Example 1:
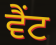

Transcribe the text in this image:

ਵੈਂਟ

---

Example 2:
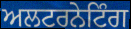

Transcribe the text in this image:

ਅਲਟਰਨੇਟਿੰਗ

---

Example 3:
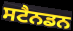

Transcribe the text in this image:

ਸਟੈਨਡਨ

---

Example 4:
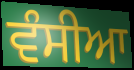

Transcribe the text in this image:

ਵੰਸੀਆ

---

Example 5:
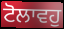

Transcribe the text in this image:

ਟੋਲਾਵਹੁ